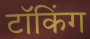
टॉकिंग